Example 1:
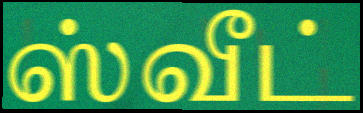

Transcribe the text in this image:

ஸ்வீட்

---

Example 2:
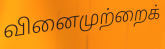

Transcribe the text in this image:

வினைமுற்றைக்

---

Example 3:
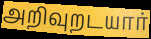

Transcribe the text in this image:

அறிவுறடயார்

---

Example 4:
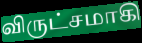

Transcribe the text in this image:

விருட்சமாகி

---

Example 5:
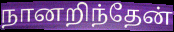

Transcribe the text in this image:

நானறிந்தேன்